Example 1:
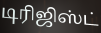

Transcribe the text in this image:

டிரிஜிஸ்ட்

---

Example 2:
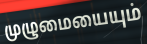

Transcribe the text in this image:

முழுமையையும்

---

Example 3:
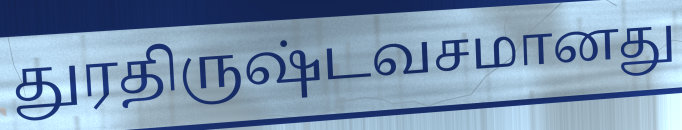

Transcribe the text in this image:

துரதிருஷ்டவசமானது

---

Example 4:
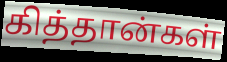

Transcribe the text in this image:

கித்தான்கள்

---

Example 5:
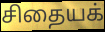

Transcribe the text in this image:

சிதையக்